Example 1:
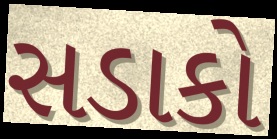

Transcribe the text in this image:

સડાકો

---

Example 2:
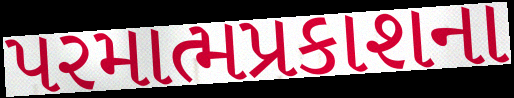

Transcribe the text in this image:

પરમાત્મપ્રકાશના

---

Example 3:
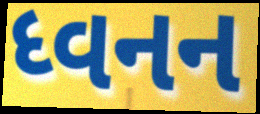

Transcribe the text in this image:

ધ્વનન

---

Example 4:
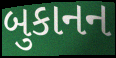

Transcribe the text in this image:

બુકાનન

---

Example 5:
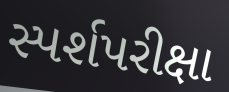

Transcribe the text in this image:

સ્પર્શપરીક્ષા